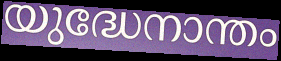
യുദ്ധേനാന്തം